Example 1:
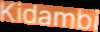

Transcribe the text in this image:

Kidambi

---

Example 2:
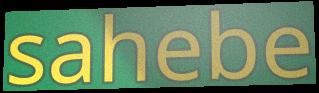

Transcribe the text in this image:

sahebe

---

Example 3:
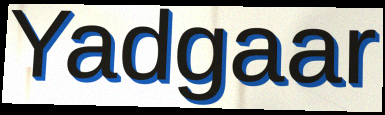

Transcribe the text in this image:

Yadgaar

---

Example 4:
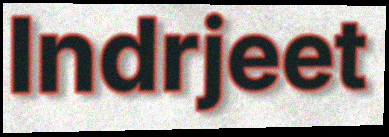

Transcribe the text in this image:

Indrjeet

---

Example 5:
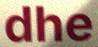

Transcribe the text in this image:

dhe